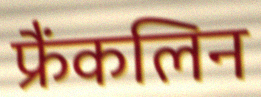
फ्रैंकलिन